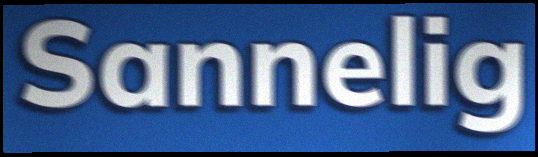
Sannelig